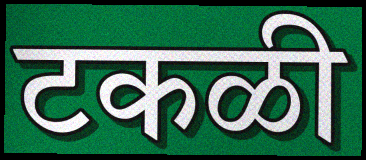
टकळी